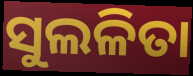
ସୁଲଳିତା